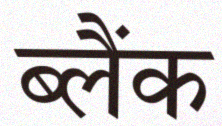
ब्लैंक